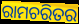
ରାମଚରିତର